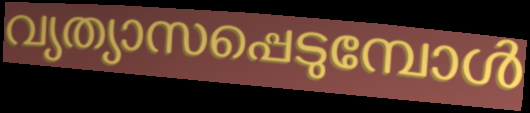
വ്യത്യാസപ്പെടുമ്പോൾ